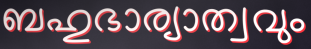
ബഹുഭാര്യാത്വവും